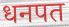
धनपत